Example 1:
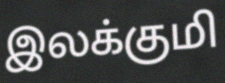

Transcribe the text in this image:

இலக்குமி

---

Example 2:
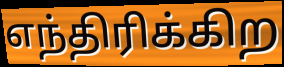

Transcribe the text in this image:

எந்திரிக்கிற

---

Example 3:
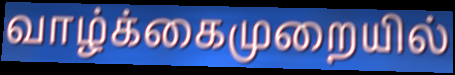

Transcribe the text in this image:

வாழ்க்கைமுறையில்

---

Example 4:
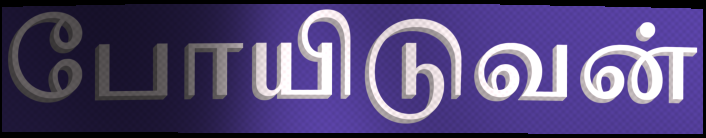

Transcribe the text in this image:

போயிடுவன்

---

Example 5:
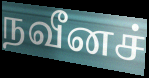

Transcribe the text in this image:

நவீனச்